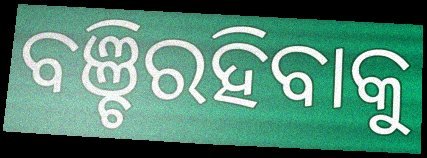
ବଞ୍ଚିରହିବାକୁ